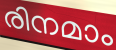
രിനമാം